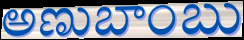
అణుబాంబు